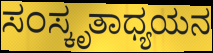
ಸಂಸ್ಕೃತಾಧ್ಯಯನ